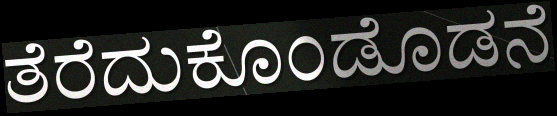
ತೆರೆದುಕೊಂಡೊಡನೆ